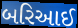
બરિઆઈ